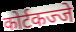
कोर्टकज्जे